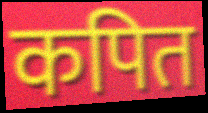
कपित